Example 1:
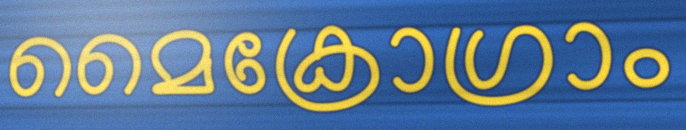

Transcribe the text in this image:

മൈക്രോഗ്രാം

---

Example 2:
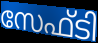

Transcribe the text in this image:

സേഫ്ടി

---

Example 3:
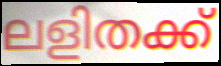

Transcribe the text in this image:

ലളിതക്ക്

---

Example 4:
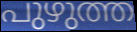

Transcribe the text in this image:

പുഴുത്ത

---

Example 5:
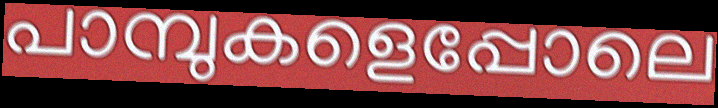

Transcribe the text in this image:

പാമ്പുകളെപ്പോലെ